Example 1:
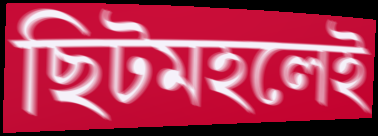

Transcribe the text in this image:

ছিটমহলেই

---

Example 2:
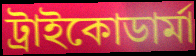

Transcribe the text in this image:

ট্রাইকোডার্মা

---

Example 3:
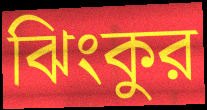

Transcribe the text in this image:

ঝিংকুর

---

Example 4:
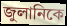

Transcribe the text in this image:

জুলানিকে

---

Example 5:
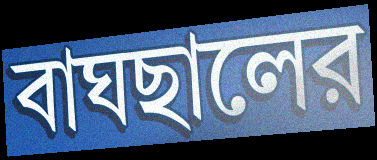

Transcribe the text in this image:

বাঘছালের